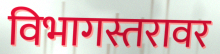
विभागस्तरावर